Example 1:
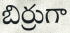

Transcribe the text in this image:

బిర్రుగా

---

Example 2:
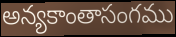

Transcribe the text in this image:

అన్యకాంతాసంగము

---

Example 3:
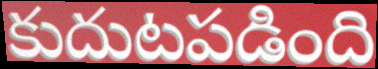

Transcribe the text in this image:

కుదుటపడింది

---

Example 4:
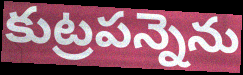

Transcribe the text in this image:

కుట్రపన్నెను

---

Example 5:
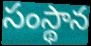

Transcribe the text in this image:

సంస్థాన